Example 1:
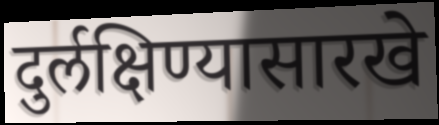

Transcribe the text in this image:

दुर्लक्षिण्यासारखे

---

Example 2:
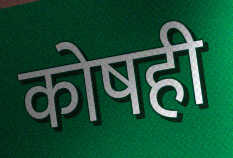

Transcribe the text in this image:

कोषही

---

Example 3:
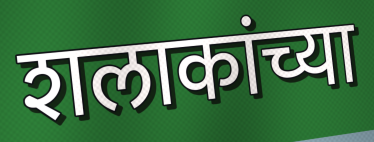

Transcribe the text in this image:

शलाकांच्या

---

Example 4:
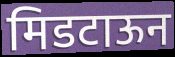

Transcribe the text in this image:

मिडटाऊन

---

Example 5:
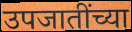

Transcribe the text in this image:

उपजातींच्या